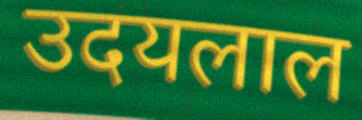
उदयलाल